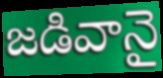
జడివానై